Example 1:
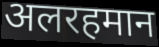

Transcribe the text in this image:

अलरहमान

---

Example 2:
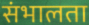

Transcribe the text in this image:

संभालता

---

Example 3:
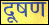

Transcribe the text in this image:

दूषण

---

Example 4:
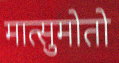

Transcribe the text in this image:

मात्सुमोतो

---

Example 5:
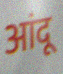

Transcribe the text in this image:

आंदू